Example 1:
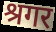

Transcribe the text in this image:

श्रगर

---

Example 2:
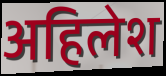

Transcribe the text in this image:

अहिलेश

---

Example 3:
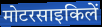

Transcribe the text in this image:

मोटरसाइकिलें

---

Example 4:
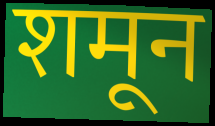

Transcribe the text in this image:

शमून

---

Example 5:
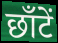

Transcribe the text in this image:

छाँटें